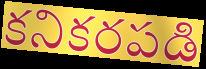
కనికరపడి